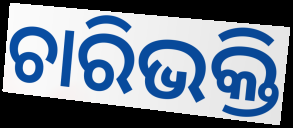
ଚାରିଭକ୍ତି